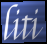
liti